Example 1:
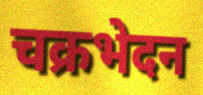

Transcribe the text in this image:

चक्रभेदन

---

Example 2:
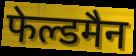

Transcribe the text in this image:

फेल्डमैन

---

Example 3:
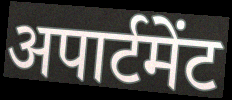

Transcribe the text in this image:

अपार्टमेंट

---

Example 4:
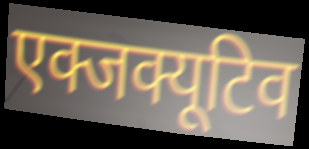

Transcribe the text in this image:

एक्जक्यूटिव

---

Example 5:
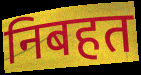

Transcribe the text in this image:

निबहत